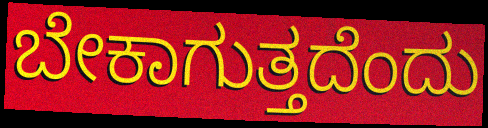
ಬೇಕಾಗುತ್ತದೆಂದು